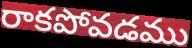
రాకపోవడము